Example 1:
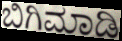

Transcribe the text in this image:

ಬಿಗಿಮಾಡಿ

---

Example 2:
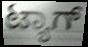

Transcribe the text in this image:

ಟ್ಯಾಗ್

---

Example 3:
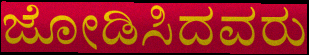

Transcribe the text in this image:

ಜೋಡಿಸಿದವರು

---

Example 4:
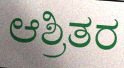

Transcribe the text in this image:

ಆಶ್ರಿತರ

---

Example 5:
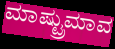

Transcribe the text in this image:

ಮಾಷ್ಟ್ರುಮಾವ